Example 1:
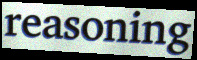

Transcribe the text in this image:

reasoning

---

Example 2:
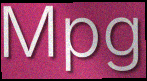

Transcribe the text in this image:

Mpg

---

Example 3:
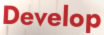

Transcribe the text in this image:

Develop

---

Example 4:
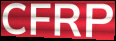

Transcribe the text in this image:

CFRP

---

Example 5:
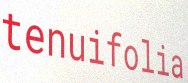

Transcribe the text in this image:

tenuifolia